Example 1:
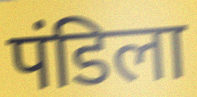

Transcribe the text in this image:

पंडिला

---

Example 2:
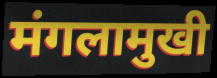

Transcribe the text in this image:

मंगलामुखी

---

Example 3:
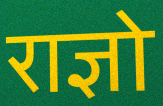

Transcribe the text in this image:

राज्ञो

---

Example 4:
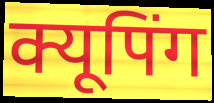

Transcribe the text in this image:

क्यूपिंग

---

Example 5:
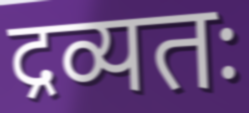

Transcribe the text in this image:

द्रव्यतः